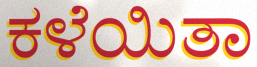
ಕಳೆಯಿತಾ